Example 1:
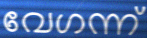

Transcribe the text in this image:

വേഗന്ന്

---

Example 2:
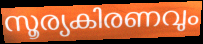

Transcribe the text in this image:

സൂര്യകിരണവും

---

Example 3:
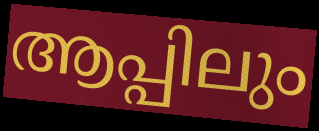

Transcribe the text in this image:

ആപ്പിലും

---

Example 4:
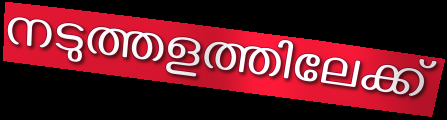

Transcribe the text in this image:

നടുത്തളത്തിലേക്ക്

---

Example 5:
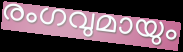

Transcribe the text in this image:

രംഗവുമായും